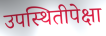
उपस्थितीपेक्षा